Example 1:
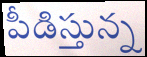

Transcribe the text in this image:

పీడిస్తున్న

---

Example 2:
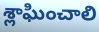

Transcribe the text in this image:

శ్లాఘించాలి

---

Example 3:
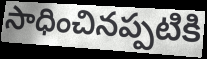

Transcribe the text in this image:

సాధించినప్పటికి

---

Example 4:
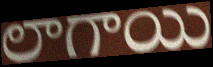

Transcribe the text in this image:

లాగాయి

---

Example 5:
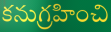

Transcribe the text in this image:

కనుగ్రహించి